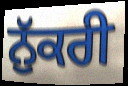
ਨੁੱਕਰੀ